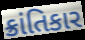
ક્રાંતિકાર